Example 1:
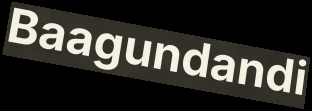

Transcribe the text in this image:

Baagundandi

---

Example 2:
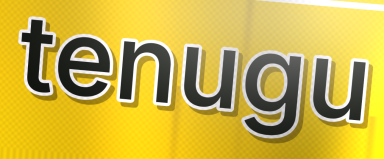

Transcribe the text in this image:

tenugu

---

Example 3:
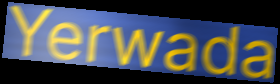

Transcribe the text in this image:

Yerwada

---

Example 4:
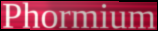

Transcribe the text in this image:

Phormium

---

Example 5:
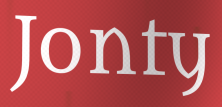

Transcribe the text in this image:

Jonty